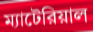
ম্যাটেরিয়াল